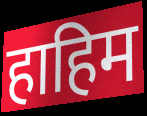
हाहिम